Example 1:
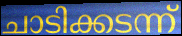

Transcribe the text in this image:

ചാടിക്കടന്ന്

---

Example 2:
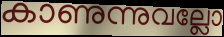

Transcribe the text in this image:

കാണുന്നുവല്ലോ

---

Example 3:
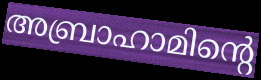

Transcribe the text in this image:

അബ്രാഹാമിന്റെ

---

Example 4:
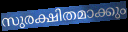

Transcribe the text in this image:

സുരക്ഷിതമാക്കും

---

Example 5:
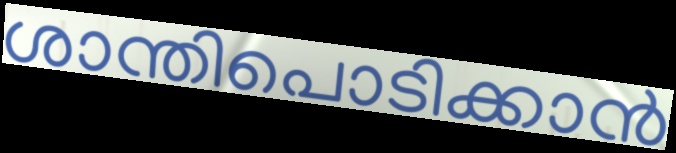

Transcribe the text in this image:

ശാന്തിപൊടിക്കാൻ